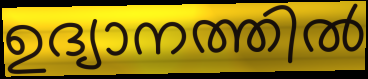
ഉദ്യാനത്തിൽ